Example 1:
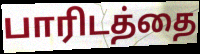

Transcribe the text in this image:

பாரிடத்தை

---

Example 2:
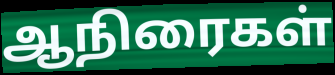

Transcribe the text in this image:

ஆநிரைகள்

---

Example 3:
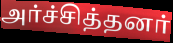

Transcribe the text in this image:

அர்ச்சித்தனர்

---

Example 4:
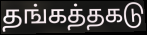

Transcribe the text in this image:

தங்கத்தகடு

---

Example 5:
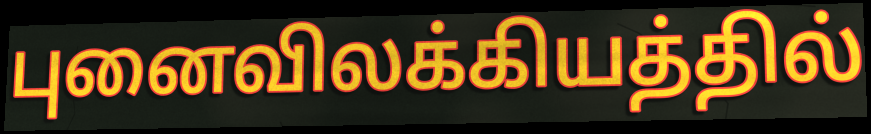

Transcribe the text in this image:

புனைவிலக்கியத்தில்